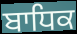
ਬਾਧਿਕ